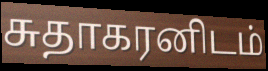
சுதாகரனிடம்